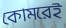
কোমরেই